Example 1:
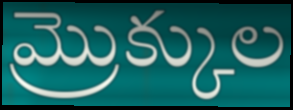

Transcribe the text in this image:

మ్రొక్కుల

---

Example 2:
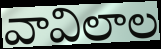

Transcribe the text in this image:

వావిలాల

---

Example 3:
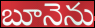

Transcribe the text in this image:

బూనెను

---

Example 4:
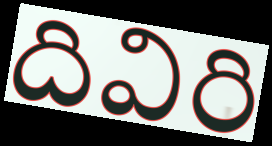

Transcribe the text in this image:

దివిరి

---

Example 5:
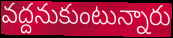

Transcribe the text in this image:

వద్దనుకుంటున్నారు